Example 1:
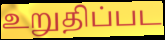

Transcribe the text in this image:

உறுதிப்பட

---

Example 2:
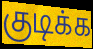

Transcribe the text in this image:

குடிக்க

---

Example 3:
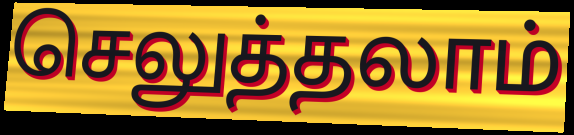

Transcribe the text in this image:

செலுத்தலாம்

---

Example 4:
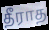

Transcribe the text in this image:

தீராத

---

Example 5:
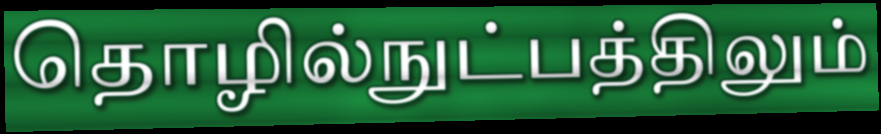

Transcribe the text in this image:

தொழில்நுட்பத்திலும்